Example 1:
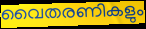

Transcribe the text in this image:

വൈതരണികളും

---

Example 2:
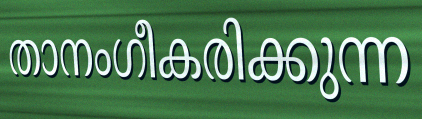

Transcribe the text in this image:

താനംഗീകരിക്കുന്ന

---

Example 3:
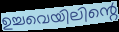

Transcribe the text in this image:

ഉച്ചവെയിലിന്റെ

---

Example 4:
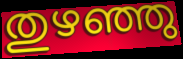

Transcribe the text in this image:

തുഴഞ്ഞു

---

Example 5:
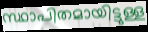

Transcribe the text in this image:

സ്ഥാപിതമായിട്ടുള്ള